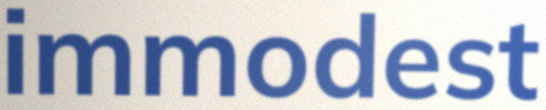
immodest